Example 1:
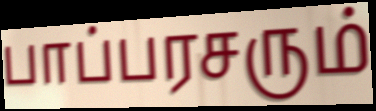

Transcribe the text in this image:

பாப்பரசரும்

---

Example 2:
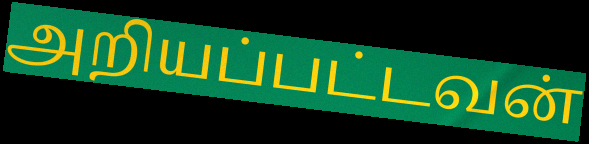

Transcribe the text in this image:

அறியப்பட்டவன்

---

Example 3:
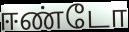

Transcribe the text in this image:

ஈண்டோ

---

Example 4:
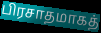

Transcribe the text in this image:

பிரசாதமாகத்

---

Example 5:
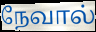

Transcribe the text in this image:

நேவால்